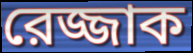
রেজ্জাক